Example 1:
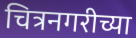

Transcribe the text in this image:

चित्रनगरीच्या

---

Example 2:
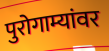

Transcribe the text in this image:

पुरोगाम्यांवर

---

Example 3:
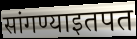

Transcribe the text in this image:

सांगण्याइतपत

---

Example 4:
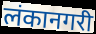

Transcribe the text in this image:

लंकानगरी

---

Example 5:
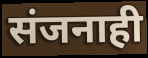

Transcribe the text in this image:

संजनाही